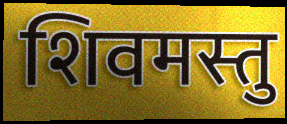
शिवमस्तु